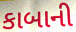
કાબાની